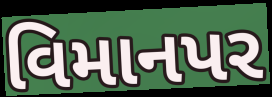
વિમાનપર